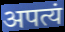
अपत्यं